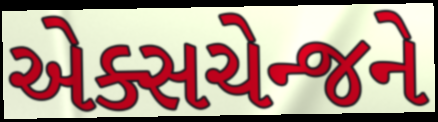
એક્સચેન્જને